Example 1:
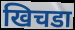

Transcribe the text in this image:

खिचडा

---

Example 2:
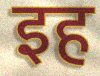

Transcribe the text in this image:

इह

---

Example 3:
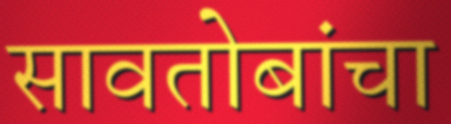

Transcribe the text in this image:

सावतोबांचा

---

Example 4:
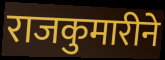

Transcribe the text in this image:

राजकुमारीने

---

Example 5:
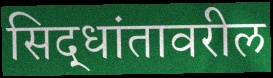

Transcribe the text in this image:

सिद्धांतावरील